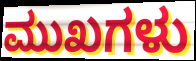
ಮುಖಗಳು